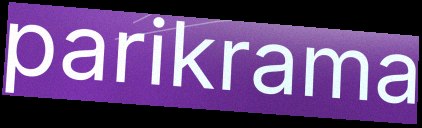
parikrama